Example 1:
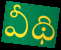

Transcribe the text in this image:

వీథి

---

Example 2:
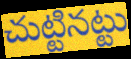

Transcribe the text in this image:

చుట్టినట్టు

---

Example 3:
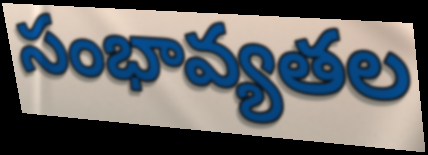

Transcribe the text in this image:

సంభావ్యతల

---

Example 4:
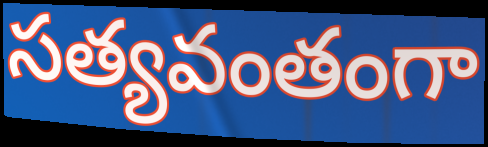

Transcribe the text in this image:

సత్యవంతంగా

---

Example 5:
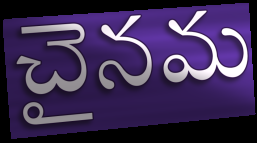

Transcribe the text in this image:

చైనమ